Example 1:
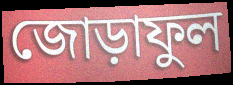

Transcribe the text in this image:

জোড়াফুল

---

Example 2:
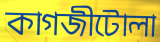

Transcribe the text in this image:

কাগজীটোলা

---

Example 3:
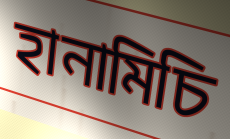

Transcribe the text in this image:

হানামিচি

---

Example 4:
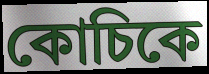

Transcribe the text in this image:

কোচিকে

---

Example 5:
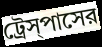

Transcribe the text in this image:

ট্রেস্‌পাসের